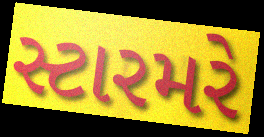
સ્ટારમરે